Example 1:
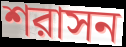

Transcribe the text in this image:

শরাসন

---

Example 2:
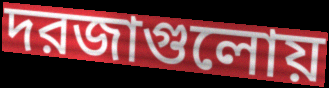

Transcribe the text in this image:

দরজাগুলোয়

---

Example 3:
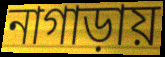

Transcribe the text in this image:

নাগাড়ায়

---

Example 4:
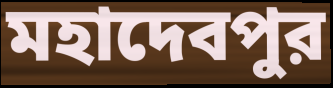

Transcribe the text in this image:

মহাদেবপুর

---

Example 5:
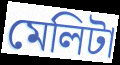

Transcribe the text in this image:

মেলিটা